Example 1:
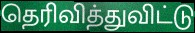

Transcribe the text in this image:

தெரிவித்துவிட்டு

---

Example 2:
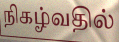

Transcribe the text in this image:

நிகழ்வதில்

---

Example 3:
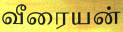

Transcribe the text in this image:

வீரையன்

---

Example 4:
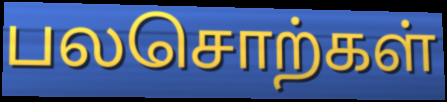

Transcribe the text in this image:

பலசொற்கள்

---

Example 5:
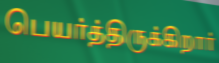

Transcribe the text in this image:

பெயர்த்திருக்கிறார்